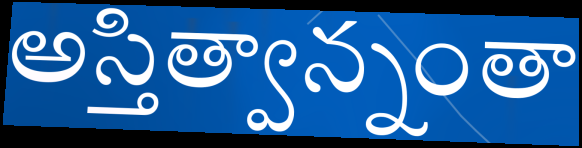
అస్తిత్వాన్నంతా